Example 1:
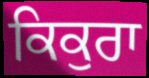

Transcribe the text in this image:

ਕਿਕੁਰਾ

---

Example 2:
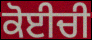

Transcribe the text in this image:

ਕੋਈਚੀ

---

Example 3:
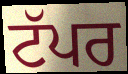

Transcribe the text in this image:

ਟੱਪਰ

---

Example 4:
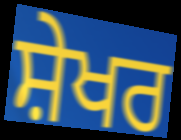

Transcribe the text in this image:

ਸ਼ੇਖਰ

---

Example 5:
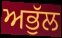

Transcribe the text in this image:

ਅਭੁੱਲ